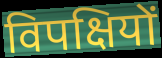
विपक्षियों